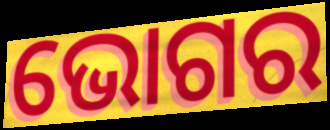
ଭୋଗର